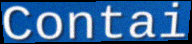
Contai